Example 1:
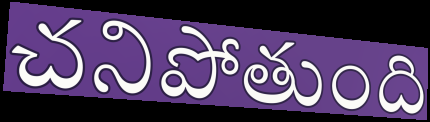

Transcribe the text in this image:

చనిపోతుంది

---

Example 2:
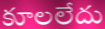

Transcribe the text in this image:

కూలలేదు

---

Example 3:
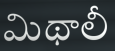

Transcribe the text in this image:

మిథాలీ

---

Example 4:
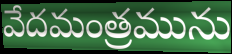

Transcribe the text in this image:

వేదమంత్రమును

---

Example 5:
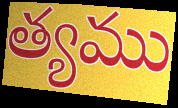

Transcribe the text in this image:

త్యము